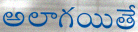
అలాగయితే